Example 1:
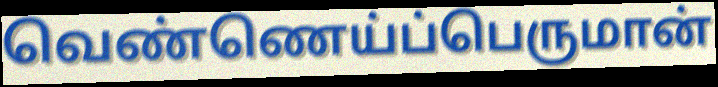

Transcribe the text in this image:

வெண்ணெய்ப்பெருமான்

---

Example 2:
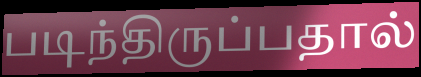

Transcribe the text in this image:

படிந்திருப்பதால்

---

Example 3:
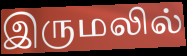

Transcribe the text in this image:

இருமலில்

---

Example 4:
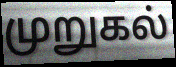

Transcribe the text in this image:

முறுகல்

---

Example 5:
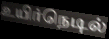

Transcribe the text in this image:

உயிர்நெடில்